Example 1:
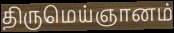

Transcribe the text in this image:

திருமெய்ஞானம்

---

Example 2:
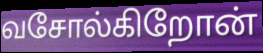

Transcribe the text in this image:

வசோல்கிறோன்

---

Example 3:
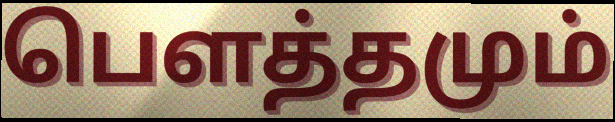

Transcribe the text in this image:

பௌத்தமும்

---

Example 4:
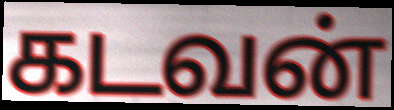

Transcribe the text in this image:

கடவன்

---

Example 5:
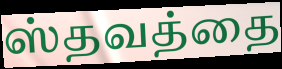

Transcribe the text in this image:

ஸ்தவத்தை